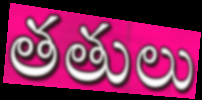
తతులు